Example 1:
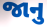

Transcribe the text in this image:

જાનુ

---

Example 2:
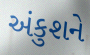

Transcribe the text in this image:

અંકુશને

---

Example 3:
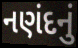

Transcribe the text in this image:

નણંદનું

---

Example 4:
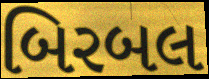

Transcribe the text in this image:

બિરબલ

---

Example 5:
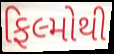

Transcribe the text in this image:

ફિલ્મોથી